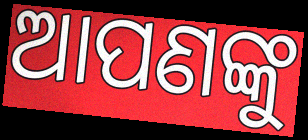
ଆପଣଙ୍କୁ